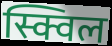
स्क्विल